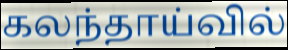
கலந்தாய்வில்